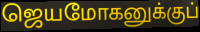
ஜெயமோகனுக்குப்